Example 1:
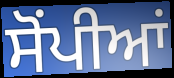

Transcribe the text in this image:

ਸੋਂਪੀਆਂ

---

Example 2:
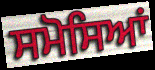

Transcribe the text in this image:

ਸਮੋਸਿਆਂ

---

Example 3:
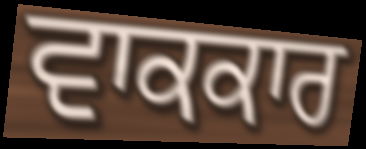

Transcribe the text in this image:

ਵਾਕਕਾਰ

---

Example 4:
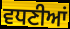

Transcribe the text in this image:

ਵਧਣੀਆਂ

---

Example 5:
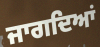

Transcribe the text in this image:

ਜਾਗਦਿਆਂ